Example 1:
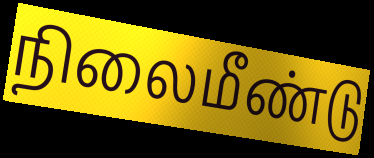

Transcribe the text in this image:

நிலைமீண்டு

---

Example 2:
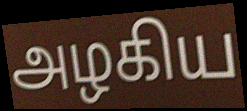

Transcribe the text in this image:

அழகிய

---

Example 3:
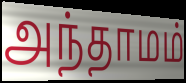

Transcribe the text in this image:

அந்தாமம்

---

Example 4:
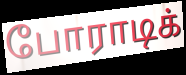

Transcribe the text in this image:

போராடிக்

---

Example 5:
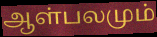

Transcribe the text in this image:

ஆள்பலமும்